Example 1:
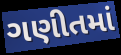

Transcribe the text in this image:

ગણીતમાં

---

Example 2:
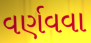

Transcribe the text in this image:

વર્ણવવા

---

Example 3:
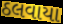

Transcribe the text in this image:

ઠલવાયા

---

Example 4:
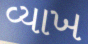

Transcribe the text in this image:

વ્યાખ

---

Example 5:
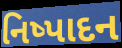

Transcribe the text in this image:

નિષ્પાદન